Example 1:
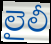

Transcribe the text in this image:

లైలీ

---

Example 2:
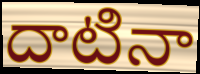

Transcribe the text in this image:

దాటినా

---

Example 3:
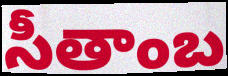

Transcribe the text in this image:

సీతాంబ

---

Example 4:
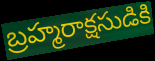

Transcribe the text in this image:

బ్రహ్మరాక్షసుడికి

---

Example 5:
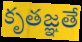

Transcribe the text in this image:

కృతజ్ఞతే